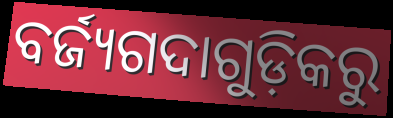
ବର୍ଜ୍ୟଗଦାଗୁଡ଼ିକରୁ